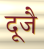
दूजै